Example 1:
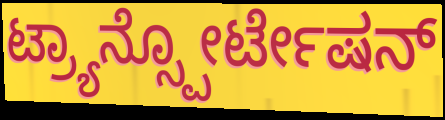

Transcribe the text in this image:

ಟ್ರ್ಯಾನ್ಸ್ಪೋರ್ಟೇಷನ್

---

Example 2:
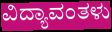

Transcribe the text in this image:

ವಿದ್ಯಾವಂತಳು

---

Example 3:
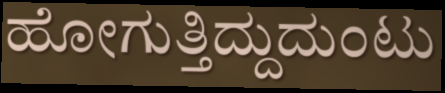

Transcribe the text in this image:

ಹೋಗುತ್ತಿದ್ದುದುಂಟು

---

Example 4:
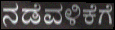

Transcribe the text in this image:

ನಡೆವಳಿಕೆಗೆ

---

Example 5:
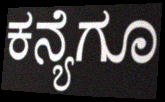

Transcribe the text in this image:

ಕನ್ಯೆಗೂ